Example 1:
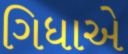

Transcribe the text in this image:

ગિધાએ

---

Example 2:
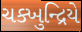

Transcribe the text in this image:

ચક્ખુન્દ્રિયે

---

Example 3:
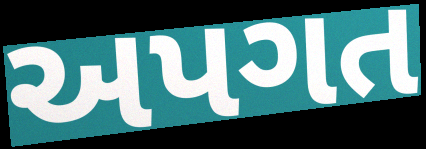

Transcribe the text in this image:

અપગત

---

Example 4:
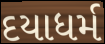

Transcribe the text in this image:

દયાધર્મ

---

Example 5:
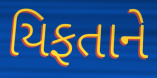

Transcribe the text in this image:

યિફતાને